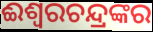
ଈଶ୍ଵରଚନ୍ଦ୍ରଙ୍କର